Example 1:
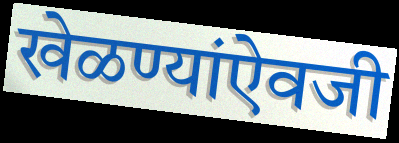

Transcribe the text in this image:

खेळण्यांऐवजी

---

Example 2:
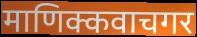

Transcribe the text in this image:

माणिक्कवाचगर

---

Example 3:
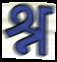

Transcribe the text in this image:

श्न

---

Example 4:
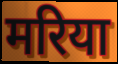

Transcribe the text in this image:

मरिया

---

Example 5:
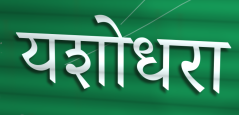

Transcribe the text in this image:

यशोधरा